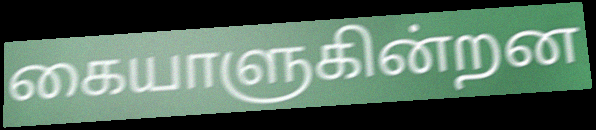
கையாளுகின்றன